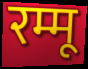
रम्मू